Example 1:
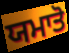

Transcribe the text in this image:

ਯਮਾਤੋ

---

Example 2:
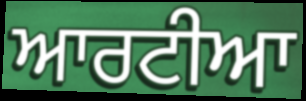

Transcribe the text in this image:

ਆਰਟੀਆ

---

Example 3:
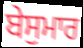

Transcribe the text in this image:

ਬੇਸੁਮਾਰ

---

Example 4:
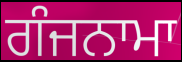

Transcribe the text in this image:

ਗੰਜਨਾਮਾ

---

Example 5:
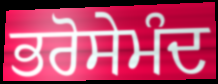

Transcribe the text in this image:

ਭਰੋਸੇਮੰਦ